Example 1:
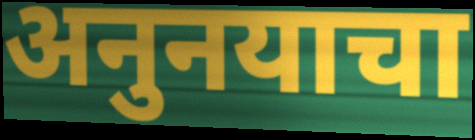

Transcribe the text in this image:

अनुनयाचा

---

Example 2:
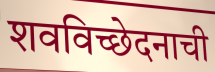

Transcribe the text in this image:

शवविच्छेदनाची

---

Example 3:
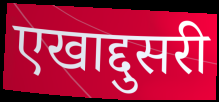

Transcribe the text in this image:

एखाद्दुसरी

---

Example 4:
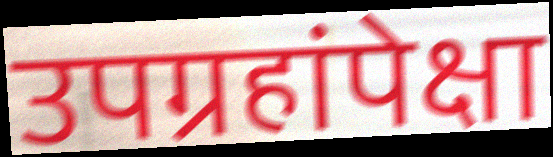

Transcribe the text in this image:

उपग्रहांपेक्षा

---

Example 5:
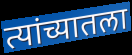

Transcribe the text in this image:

त्यांच्यातला